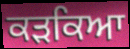
ਕੜਕਿਆ